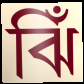
ঝিঁ